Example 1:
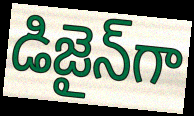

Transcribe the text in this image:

డిజైన్‌గా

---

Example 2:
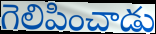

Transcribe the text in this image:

గెలిపించాడు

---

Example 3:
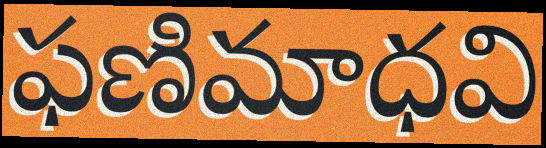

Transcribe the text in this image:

ఫణిమాధవి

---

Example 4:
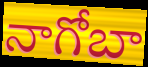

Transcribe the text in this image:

నాగోబా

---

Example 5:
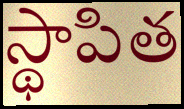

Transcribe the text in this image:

స్థాపిత